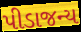
પીડાજન્ય